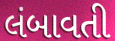
લંબાવતી